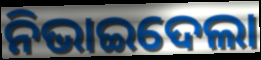
ନିଭାଇଦେଲା